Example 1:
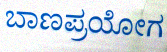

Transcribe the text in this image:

ಬಾಣಪ್ರಯೋಗ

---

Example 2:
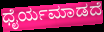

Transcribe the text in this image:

ಧೈರ್ಯಮಾಡದೆ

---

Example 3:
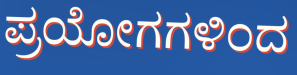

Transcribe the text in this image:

ಪ್ರಯೋಗಗಳಿಂದ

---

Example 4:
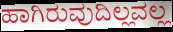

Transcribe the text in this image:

ಹಾಗಿರುವುದಿಲ್ಲವಲ್ಲ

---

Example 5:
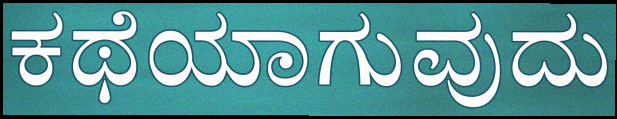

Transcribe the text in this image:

ಕಥೆಯಾಗುವುದು